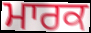
ਮਾਰਕ